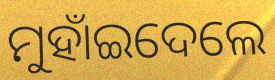
ମୁହାଁଇଦେଲେ